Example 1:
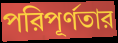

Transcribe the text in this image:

পরিপূর্ণতার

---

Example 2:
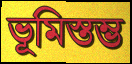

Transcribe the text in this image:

ভূমিস্তম্ভ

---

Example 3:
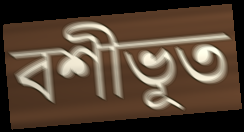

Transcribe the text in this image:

বশীভূত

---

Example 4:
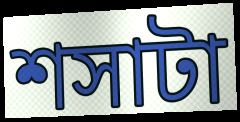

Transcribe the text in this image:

শসাটা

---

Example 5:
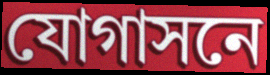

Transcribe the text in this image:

যোগাসনে